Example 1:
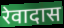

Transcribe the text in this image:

रेवादास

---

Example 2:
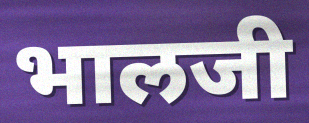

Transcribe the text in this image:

भालजी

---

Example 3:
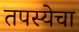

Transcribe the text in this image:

तपस्येचा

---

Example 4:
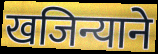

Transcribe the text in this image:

खजिन्याने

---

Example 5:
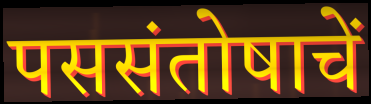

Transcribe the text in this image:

पससंतोषाचें